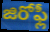
జిరోఫ్లీ